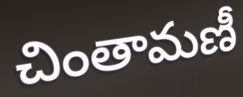
చింతామణీ